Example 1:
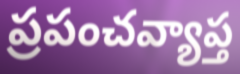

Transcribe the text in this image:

ప్రపంచవ్యాప్త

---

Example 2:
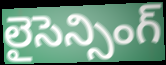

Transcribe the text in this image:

లైసెన్సింగ్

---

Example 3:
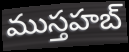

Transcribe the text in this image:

ముస్తహబ్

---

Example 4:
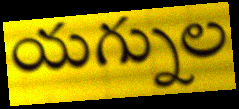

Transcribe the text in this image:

యగ్నుల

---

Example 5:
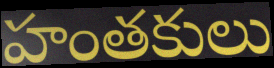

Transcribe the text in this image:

హంతకులు